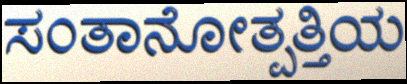
ಸಂತಾನೋತ್ಪತ್ತಿಯ